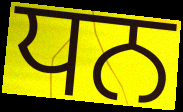
ਧਨ